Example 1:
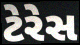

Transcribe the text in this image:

ટેરેસ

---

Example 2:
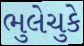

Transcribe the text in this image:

ભુલેચુકે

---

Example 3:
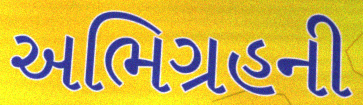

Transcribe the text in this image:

અભિગ્રહની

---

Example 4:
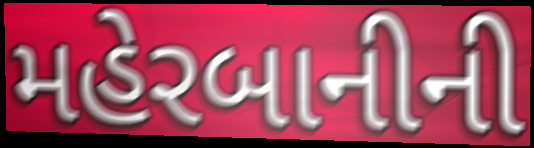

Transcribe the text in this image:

મહેરબાનીની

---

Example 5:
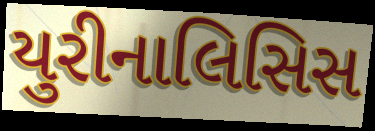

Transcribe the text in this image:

યુરીનાલિસિસ